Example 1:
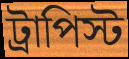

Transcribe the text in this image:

ট্রাপিস্ট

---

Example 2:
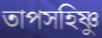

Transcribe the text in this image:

তাপসহিষ্ণু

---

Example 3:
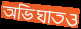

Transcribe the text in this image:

অভিঘাতও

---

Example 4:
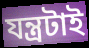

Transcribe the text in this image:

যন্ত্রটাই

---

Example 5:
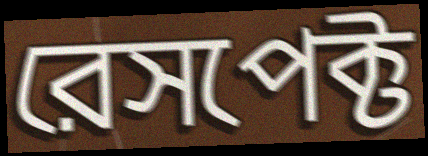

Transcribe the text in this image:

রেসপেক্ট